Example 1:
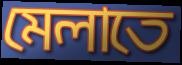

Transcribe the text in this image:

মেলাতে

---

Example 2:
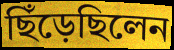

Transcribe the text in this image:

ছিঁড়েছিলেন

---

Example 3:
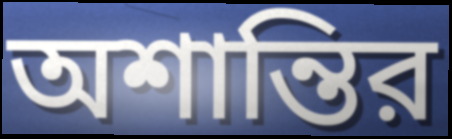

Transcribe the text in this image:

অশান্তির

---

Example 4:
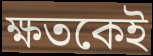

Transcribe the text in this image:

ক্ষতকেই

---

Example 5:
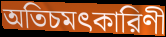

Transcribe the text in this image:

অতিচমৎকারিণী